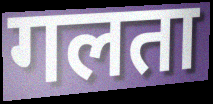
गलता